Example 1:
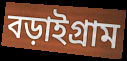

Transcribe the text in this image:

বড়াইগ্রাম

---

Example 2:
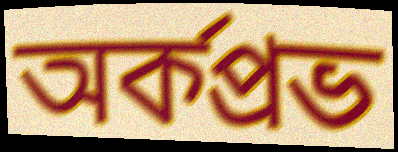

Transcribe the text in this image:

অর্কপ্রভ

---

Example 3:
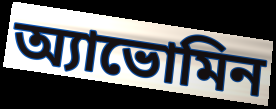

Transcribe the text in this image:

অ্যাভোমিন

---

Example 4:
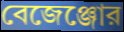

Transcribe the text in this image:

বেজেঞ্জোর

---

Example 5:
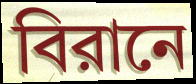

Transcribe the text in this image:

বিরানে